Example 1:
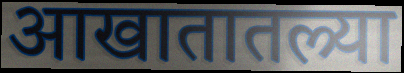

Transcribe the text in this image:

आखातातल्या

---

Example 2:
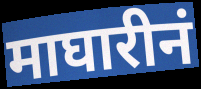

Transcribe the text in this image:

माघारीनं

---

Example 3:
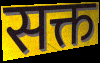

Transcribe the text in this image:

सक्त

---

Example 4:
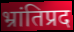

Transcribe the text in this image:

भ्रांतिप्रद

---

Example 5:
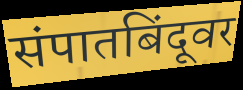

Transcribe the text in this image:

संपातबिंदूवर